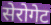
सेरोगेट